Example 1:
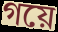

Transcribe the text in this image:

গয়ে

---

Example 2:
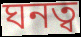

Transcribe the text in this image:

ঘনত্ব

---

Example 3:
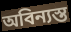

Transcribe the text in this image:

অবিন্যস্ত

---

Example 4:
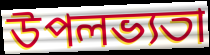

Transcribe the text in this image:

উপলভ্যতা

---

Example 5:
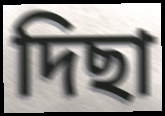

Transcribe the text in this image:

দিছা